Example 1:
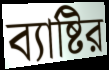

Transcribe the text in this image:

ব্যাষ্টির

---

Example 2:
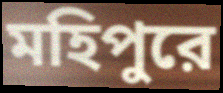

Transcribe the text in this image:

মহিপুরে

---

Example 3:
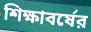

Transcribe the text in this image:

শিক্ষাবর্ষের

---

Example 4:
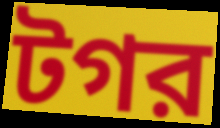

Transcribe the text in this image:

টগর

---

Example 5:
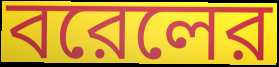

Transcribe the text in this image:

বরেলের